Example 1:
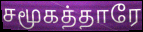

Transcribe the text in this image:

சமூகத்தாரே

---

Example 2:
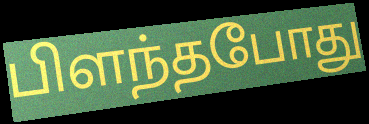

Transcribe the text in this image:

பிளந்தபோது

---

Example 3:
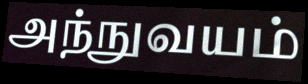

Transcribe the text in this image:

அந்நுவயம்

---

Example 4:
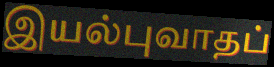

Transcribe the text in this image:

இயல்புவாதப்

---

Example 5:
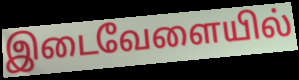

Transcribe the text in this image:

இடைவேளையில்